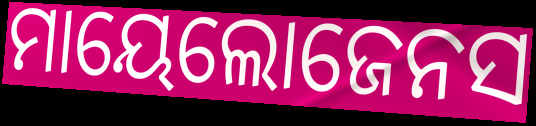
ମାୟେଲୋଜେନସ